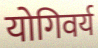
योगिवर्य